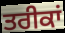
ਤਰੀਕਾਂ